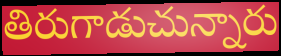
తిరుగాడుచున్నారు